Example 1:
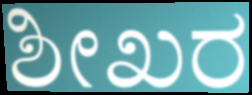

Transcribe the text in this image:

ಶೀಖರ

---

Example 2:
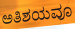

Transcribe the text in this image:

ಅತಿಶಯವೂ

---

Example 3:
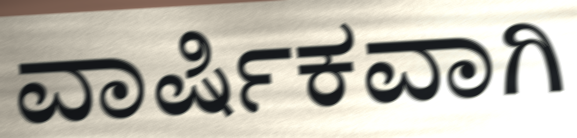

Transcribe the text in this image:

ವಾರ್ಷಿಕವಾಗಿ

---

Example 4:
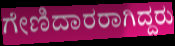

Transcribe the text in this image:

ಗೇಣಿದಾರರಾಗಿದ್ದರು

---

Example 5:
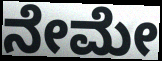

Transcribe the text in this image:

ನೇಮೇ